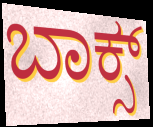
ಬಾಕ್ಸ್